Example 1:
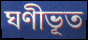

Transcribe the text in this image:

ঘণীভূত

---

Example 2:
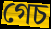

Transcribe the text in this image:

গেচ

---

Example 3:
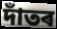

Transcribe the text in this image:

দাঁতৰ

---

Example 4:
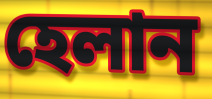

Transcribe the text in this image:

হেলান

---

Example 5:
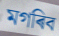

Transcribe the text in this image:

মগৰিব